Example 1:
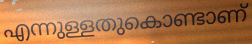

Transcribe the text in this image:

എന്നുള്ളതുകൊണ്ടാണ്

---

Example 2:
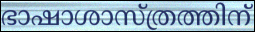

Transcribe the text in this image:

ഭാഷാശാസ്ത്രത്തിന്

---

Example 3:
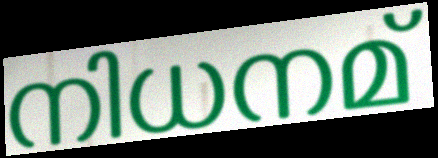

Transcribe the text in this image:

നിധനമ്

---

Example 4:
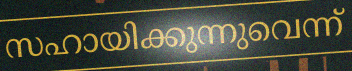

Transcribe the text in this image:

സഹായിക്കുന്നുവെന്ന്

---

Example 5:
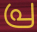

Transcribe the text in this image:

പ്ര